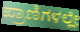
ಪ್ರಾಣಿಗಳಲ್ಲೇ